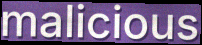
malicious